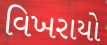
વિખરાયો